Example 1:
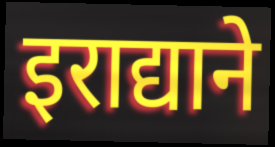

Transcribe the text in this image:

इराद्याने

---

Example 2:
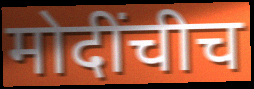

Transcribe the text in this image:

मोदींचीच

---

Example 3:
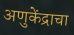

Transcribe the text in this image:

अणुकेंद्राचा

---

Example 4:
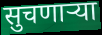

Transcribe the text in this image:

सुचणाऱ्या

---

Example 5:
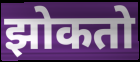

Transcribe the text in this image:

झोकतो